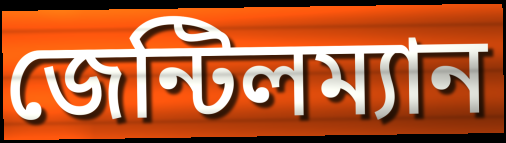
জেন্টিলম্যান